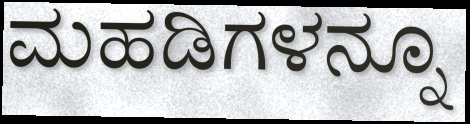
ಮಹಡಿಗಳನ್ನೂ